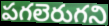
పగలెరుగని